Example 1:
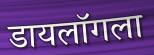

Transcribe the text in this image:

डायलॉगला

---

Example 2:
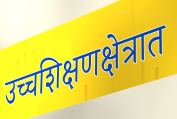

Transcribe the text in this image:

उच्चशिक्षणक्षेत्रात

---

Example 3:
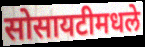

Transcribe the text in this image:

सोसायटीमधले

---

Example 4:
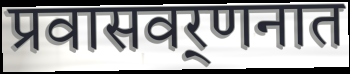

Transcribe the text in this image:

प्रवासवर्णनात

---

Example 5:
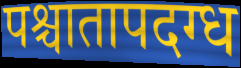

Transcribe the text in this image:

पश्चातापदग्ध